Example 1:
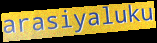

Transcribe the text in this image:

arasiyaluku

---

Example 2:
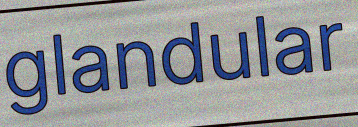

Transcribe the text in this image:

glandular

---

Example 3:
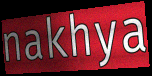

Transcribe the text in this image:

nakhya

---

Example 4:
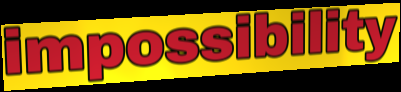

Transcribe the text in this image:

impossibility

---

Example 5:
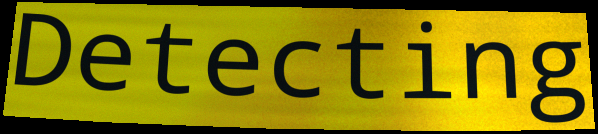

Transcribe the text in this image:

Detecting